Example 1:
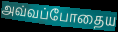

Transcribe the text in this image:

அவ்வப்போதைய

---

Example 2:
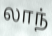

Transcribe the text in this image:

லாந்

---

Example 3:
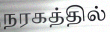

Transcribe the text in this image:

நரகத்தில்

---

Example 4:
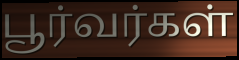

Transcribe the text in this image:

பூர்வர்கள்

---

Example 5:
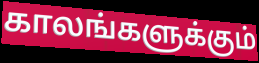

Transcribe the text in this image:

காலங்களுக்கும்